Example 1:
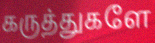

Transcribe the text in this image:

கருத்துகளே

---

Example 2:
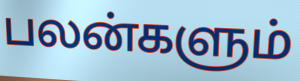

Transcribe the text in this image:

பலன்களும்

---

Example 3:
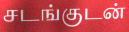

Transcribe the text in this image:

சடங்குடன்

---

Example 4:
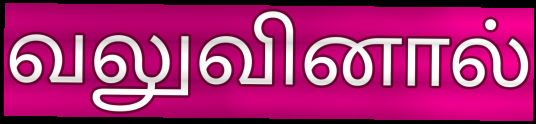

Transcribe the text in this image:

வலுவினால்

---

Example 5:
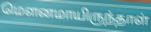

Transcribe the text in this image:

மௌனமாயிருந்தாள்